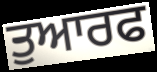
ਤੁਆਰਫ